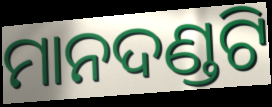
ମାନଦଣ୍ଡଟି